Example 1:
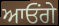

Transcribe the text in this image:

ਆਓਂਗੇ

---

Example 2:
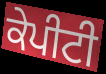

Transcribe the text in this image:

ਕੇਪੀਟੀ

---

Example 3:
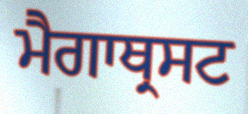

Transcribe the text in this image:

ਮੈਗਾਥ੍ਰਸਟ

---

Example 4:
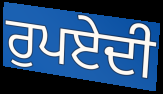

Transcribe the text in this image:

ਰੁਪਏਦੀ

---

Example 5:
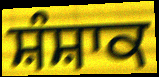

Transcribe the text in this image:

ਸ਼ੰਸ਼ਾਕ